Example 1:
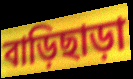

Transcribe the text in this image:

বাড়িছাড়া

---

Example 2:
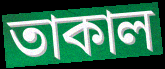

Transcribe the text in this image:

তাকাল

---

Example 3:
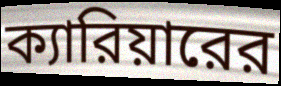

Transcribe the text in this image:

ক্যারিয়ারের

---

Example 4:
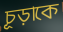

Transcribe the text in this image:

চূড়াকে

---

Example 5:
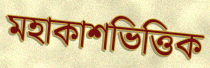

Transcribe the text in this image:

মহাকাশভিত্তিক